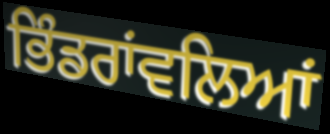
ਭਿੰਡਰਾਂਵਲਿਆਂ